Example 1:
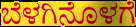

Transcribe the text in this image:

ಬೆಳಗಿನೊಳಗೆ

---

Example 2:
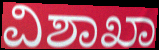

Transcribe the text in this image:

ವಿಶಾಖಾ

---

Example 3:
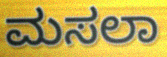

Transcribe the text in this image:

ಮಸಲಾ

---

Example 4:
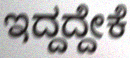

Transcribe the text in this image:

ಇದ್ದದ್ದೇಕೆ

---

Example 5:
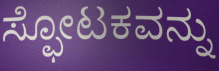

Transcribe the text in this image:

ಸ್ಫೋಟಕವನ್ನು